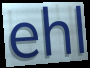
ehl